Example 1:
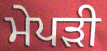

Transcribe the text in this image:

ਮੇਪੜੀ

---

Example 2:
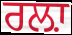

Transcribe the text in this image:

ਰਲ਼ਾ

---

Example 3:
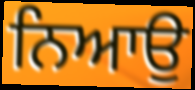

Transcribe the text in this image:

ਨਿਆਉ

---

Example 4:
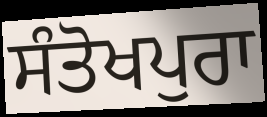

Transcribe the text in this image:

ਸੰਤੋਖਪੁਰਾ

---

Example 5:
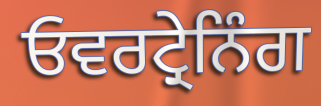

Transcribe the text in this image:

ਓਵਰਟ੍ਰੇਨਿੰਗ